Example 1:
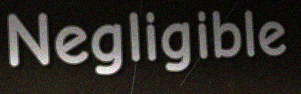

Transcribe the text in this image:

Negligible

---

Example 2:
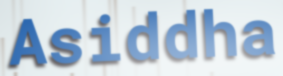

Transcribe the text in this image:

Asiddha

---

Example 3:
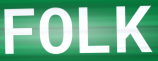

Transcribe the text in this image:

FOLK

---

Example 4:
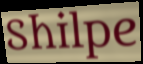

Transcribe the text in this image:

Shilpe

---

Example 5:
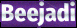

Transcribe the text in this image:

Beejadi